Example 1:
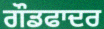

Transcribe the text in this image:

ਗੌਡਫਾਦਰ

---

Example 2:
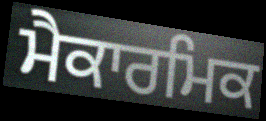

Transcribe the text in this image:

ਮੈਕਾਰਮਿਕ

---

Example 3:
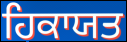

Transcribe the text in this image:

ਹਿਕਾਯਤ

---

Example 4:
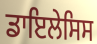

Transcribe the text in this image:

ਡਾਇਲੇਸਿਸ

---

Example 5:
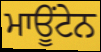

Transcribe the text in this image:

ਮਾਊਂਟੇਨ